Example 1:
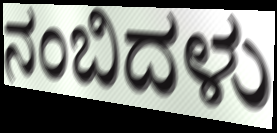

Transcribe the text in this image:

ನಂಬಿದಳು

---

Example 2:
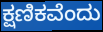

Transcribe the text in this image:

ಕ್ಷಣಿಕವೆಂದು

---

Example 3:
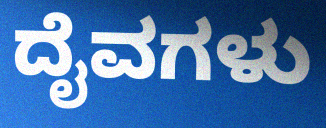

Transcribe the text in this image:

ದೈವಗಳು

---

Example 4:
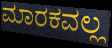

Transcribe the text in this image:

ಮಾರಕವಲ್ಲ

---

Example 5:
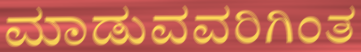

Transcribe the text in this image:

ಮಾಡುವವರಿಗಿಂತ